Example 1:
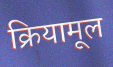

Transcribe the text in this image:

क्रियामूल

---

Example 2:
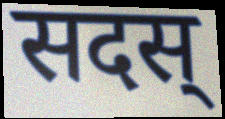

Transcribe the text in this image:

सदस्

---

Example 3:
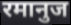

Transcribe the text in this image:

रमानुज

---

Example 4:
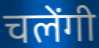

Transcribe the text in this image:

चलेंगी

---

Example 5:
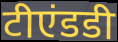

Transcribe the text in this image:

टीएंडडी